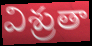
విశ్రుతా